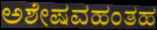
ಅಶೇಷವಹಂತಹ